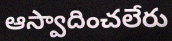
ఆస్వాదించలేరు